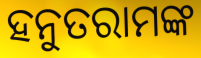
ହନୁତରାମଙ୍କ